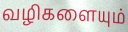
வழிகளையும்